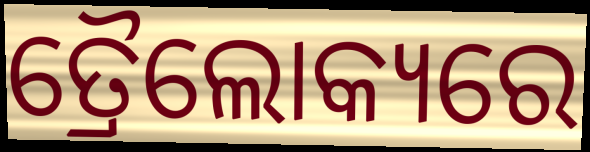
ତ୍ରୈଲୋକ୍ୟରେ